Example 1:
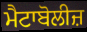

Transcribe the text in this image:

ਮੈਟਾਬੋਲੀਜ਼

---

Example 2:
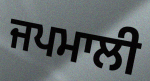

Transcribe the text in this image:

ਜਪਮਾਲੀ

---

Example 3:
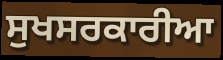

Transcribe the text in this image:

ਸੁਖਸਰਕਾਰੀਆ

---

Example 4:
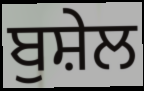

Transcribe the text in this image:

ਬੁਸ਼ੇਲ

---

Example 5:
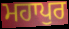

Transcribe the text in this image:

ਮਹਾਪੁਰ